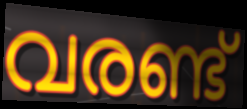
വരണ്ട്